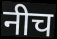
नीच